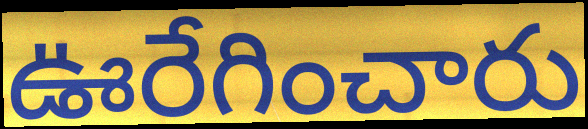
ఊరేగించారు